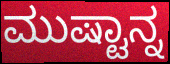
ಮುಷ್ಟಾನ್ನ